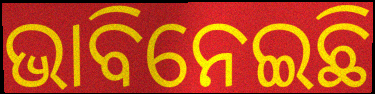
ଭାବିନେଇଛି